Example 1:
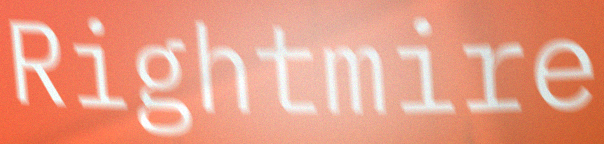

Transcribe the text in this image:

Rightmire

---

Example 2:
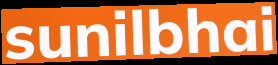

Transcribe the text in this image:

sunilbhai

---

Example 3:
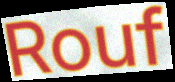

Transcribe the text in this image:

Rouf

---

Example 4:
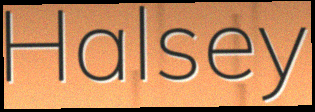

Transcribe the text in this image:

Halsey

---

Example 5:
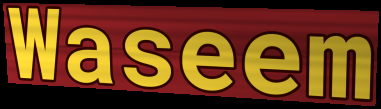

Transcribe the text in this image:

Waseem